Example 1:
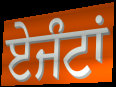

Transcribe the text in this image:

ਏਜੰਟਾਂ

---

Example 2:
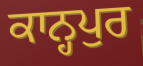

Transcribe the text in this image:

ਕਾਨ੍ਹਪੁਰ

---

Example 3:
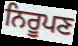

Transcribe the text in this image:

ਨਿਰੂਪਣ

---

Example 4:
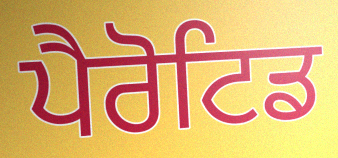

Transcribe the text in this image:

ਪੈਰੋਟਿਡ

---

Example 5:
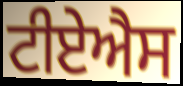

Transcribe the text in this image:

ਟੀਏਐਸ